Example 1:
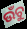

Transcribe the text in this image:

ଉଁଚୁ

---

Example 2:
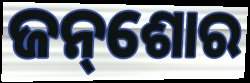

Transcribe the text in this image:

ଜନ୍‌ଶୋର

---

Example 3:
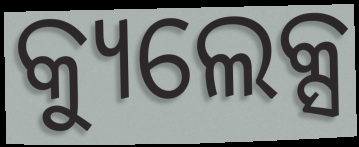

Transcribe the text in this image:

କ୍ୟୁଲେକ୍ସ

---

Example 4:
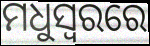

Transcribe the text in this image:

ମଧୁସ୍ୱରରେ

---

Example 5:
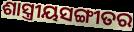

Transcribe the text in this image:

ଶାସ୍ତ୍ରୀୟସଙ୍ଗୀତର